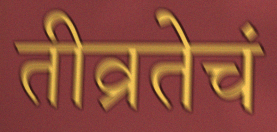
तीव्रतेचं